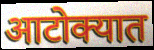
आटोक्यात